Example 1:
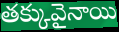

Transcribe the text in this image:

తక్కువైనాయి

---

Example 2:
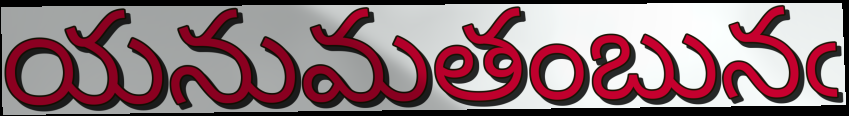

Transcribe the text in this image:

యనుమతంబునఁ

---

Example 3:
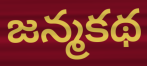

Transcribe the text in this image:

జన్మకథ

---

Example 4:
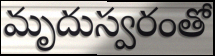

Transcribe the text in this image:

మృదుస్వరంతో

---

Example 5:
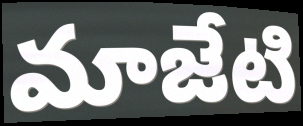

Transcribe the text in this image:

మాజేటి